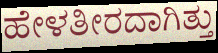
ಹೇಳತೀರದಾಗಿತ್ತು